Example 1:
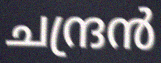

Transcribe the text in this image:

ചന്ദ്രൻ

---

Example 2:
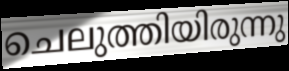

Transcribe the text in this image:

ചെലുത്തിയിരുന്നു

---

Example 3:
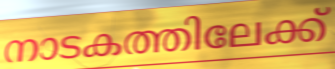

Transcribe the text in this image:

നാടകത്തിലേക്ക്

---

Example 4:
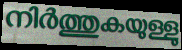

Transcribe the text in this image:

നിർത്തുകയുള്ളു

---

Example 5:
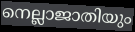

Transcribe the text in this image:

നെല്ലാജാതിയും